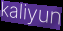
kaliyun